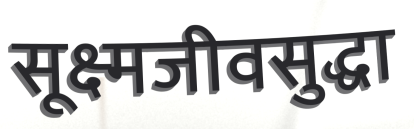
सूक्ष्मजीवसुद्धा